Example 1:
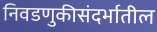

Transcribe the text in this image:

निवडणुकीसंदर्भातील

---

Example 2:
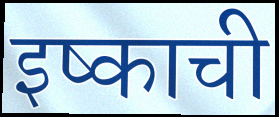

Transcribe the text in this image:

इष्काची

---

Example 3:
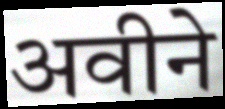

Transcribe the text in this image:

अवीने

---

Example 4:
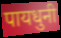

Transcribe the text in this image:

पायधुनी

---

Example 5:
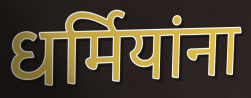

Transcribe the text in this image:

धर्मियांना